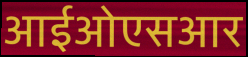
आईओएसआर